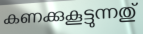
കണക്കുകൂട്ടുന്നതു്